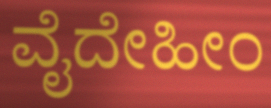
ವೈದೇಹೀಂ